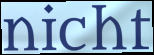
nicht